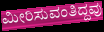
ಮೀರಿಸುವಂತಿದ್ದವು